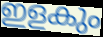
ഇളകും